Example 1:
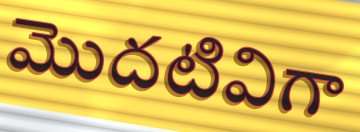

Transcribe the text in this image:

మొదటివిగా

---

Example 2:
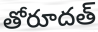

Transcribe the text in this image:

తోరూదత్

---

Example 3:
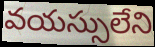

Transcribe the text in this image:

వయస్సులేని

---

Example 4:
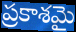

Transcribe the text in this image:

ప్రకాశమై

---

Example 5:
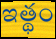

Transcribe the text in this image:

ఇత్థం